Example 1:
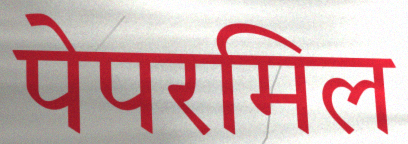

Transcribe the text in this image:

पेपरमिल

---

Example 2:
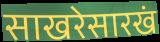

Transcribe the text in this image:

साखरेसारखं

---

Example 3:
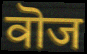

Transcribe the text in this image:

वॊज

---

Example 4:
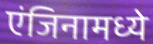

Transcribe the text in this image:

एंजिनामध्ये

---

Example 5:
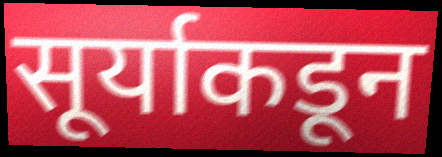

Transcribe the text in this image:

सूर्याकडून